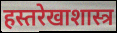
हस्तरेखाशास्त्र